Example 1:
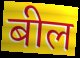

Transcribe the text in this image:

बील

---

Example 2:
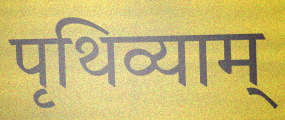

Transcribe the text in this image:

पृथिव्याम्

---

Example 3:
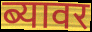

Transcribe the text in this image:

ब्यावर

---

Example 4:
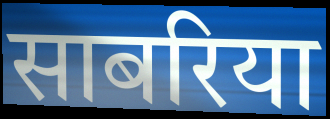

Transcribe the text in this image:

साबरिया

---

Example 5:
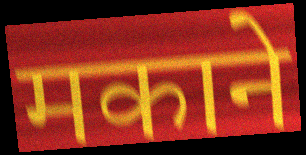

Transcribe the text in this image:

मकाने